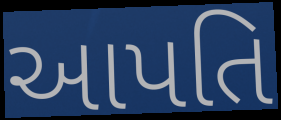
આપતિ